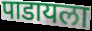
पाडायला